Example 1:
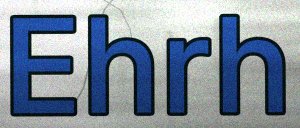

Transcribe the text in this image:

Ehrh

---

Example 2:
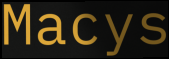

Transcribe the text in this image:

Macys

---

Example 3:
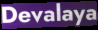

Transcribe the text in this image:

Devalaya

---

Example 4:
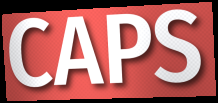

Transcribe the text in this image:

CAPS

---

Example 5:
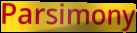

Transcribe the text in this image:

Parsimony